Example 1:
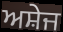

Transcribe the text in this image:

ਅਸ਼ੇਜ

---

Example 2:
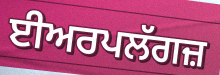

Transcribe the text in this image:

ਈਅਰਪਲੱਗਜ਼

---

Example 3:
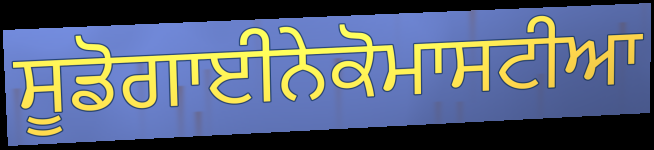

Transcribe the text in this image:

ਸੂਡੋਗਾਈਨੇਕੋਮਾਸਟੀਆ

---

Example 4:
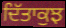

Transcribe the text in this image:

ਦਿੱਤਾਕੁਝ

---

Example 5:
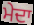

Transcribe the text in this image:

ਮੇਦਾ